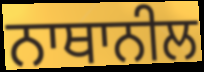
ਨਾਥਾਨੀਲ